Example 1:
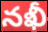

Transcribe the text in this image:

నఖీ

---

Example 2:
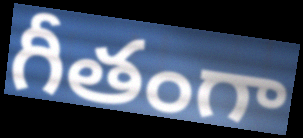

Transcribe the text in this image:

గీతంగా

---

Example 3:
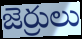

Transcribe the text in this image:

జెర్రులు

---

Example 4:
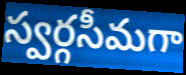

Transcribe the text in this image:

స్వర్గసీమగా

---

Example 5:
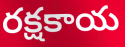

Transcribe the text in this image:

రక్షకాయ